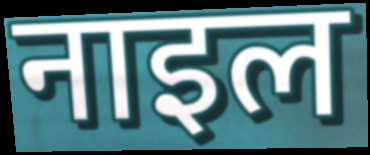
नाइल